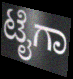
ಟೈಗಾ